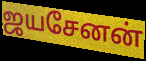
ஜயசேனன்